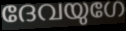
ദേവയുഗേ